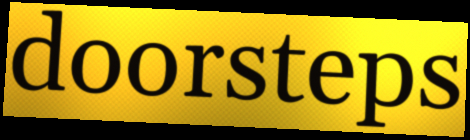
doorsteps